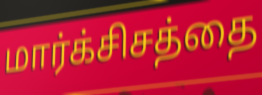
மார்க்சிசத்தை